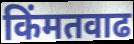
किंमतवाढ